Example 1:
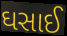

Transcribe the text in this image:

ઘસાઈ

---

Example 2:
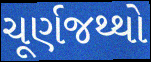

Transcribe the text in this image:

ચૂર્ણજથ્થો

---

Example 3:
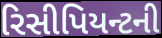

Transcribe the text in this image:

રિસીપિયન્ટની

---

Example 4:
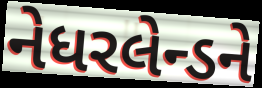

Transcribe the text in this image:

નેધરલેન્ડને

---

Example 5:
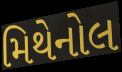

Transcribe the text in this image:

મિથેનોલ